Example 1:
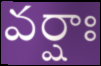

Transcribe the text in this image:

వర్షాః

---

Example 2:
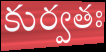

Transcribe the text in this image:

కుర్వతః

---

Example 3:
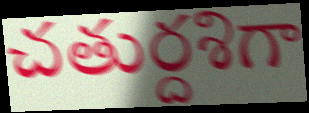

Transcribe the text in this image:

చతుర్దశిగా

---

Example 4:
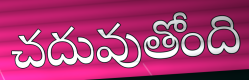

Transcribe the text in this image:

చదువుతోంది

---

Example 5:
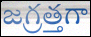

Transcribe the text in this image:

జగ్రత్తగా